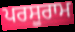
ਪਰਸੂਰਾਮ